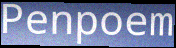
Penpoem